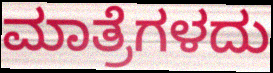
ಮಾತ್ರೆಗಳದು